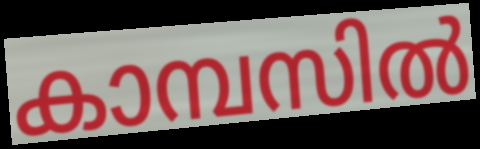
കാമ്പസിൽ